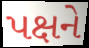
પક્ષને